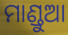
ମାଣ୍ଡୁଆ